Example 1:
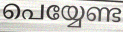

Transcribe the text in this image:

പെയ്യേണ്ട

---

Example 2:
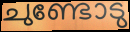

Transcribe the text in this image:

ചുണ്ടോടു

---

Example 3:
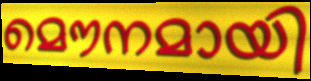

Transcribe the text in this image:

മൌനമായി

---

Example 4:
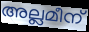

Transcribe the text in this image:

അല്ലമീന്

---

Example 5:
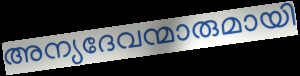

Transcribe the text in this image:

അന്യദേവന്മാരുമായി